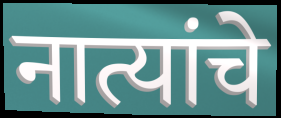
नात्यांचे